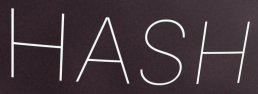
HASH